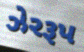
ઝેરરૂપ